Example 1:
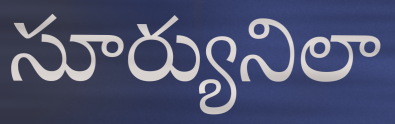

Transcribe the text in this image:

సూర్యునిలా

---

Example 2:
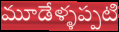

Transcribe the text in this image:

మూడేళ్ళప్పటి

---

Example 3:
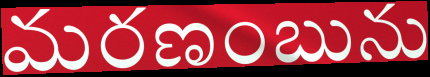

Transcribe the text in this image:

మరణంబును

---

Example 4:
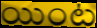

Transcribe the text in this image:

యింట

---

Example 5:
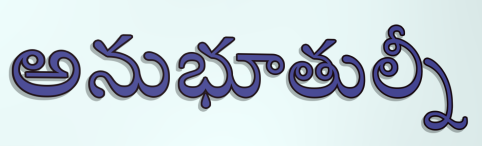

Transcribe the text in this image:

అనుభూతుల్నీ